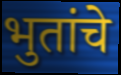
भुतांचे